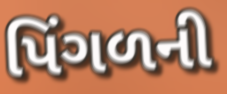
પિંગળની